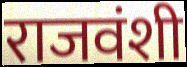
राजवंशी